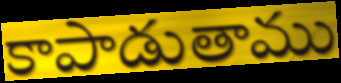
కాపాడుతాము